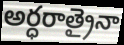
అర్ధరాత్రైనా